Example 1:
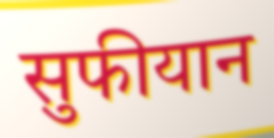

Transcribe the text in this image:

सुफीयान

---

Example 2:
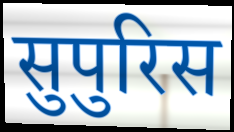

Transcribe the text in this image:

सुपुरिस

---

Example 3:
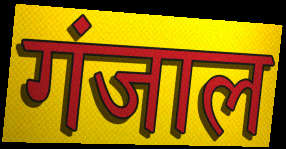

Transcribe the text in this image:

गंजाल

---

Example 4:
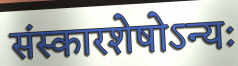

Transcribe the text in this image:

संस्कारशेषोऽन्यः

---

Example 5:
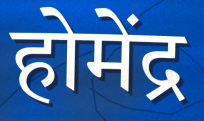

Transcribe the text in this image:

होमेंद्र